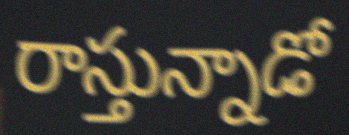
రాస్తున్నాడో